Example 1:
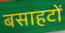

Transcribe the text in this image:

बसाहटों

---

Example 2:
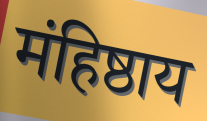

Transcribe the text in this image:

मंहिष्ठाय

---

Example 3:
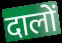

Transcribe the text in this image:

दालों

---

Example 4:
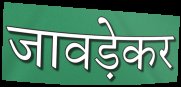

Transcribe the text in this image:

जावड़ेकर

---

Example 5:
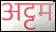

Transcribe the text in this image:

अट्टम